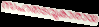
സഹതടവുകാരായ